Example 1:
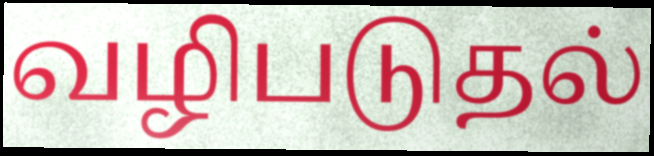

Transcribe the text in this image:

வழிபடுதல்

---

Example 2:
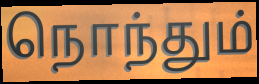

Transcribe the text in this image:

நொந்தும்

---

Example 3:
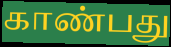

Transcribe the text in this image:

காண்பது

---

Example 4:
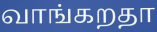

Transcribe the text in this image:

வாங்கறதா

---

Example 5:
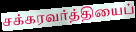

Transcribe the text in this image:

சக்கரவர்த்தியைப்